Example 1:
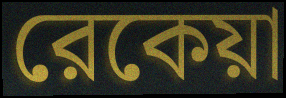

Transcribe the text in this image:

রেকেয়া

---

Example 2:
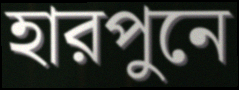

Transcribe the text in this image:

হারপুনে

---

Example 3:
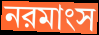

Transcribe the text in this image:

নরমাংস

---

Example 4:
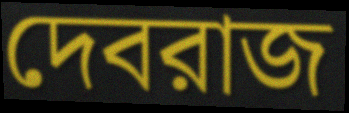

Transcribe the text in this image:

দেবরাজ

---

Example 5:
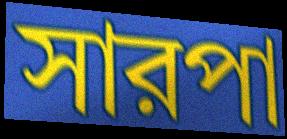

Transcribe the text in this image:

সারপা